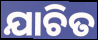
ଯାଚିତ